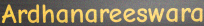
Ardhanareeswara